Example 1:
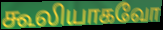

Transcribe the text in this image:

கூலியாகவோ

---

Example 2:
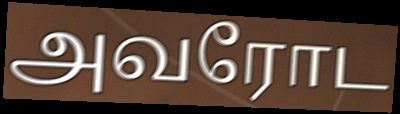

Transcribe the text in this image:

அவரோட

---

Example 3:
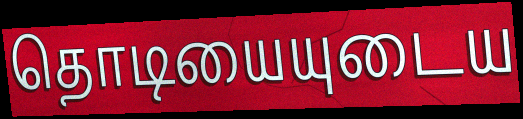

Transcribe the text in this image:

தொடியையுடைய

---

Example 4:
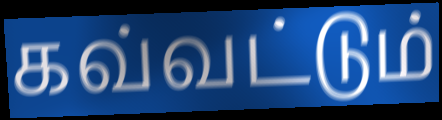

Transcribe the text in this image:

கவ்வட்டும்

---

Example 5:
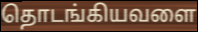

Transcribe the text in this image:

தொடங்கியவளை